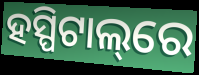
ହସ୍ପିଟାଲ୍‌ରେ